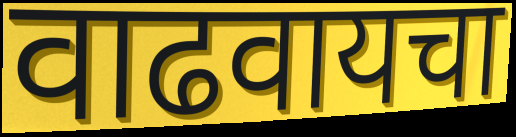
वाढवायचा